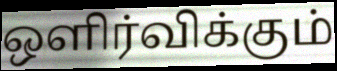
ஒளிர்விக்கும்